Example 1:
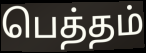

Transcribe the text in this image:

பெத்தம்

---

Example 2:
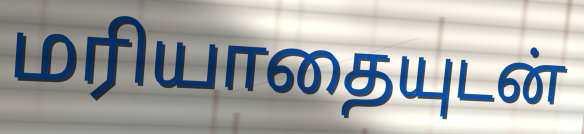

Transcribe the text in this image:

மரியாதையுடன்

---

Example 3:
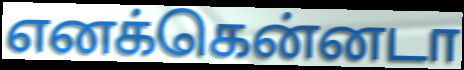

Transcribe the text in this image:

எனக்கென்னடா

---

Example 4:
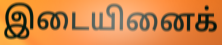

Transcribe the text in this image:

இடையினைக்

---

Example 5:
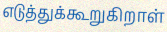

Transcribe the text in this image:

எடுத்துக்கூறுகிறாள்